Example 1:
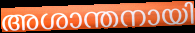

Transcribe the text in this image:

അശാന്തനായി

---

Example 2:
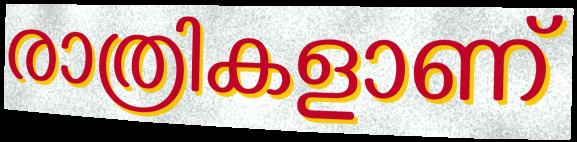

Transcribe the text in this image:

രാത്രികളാണ്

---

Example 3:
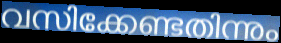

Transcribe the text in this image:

വസിക്കേണ്ടതിന്നും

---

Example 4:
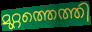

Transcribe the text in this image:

മുറ്റത്തെത്തി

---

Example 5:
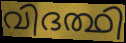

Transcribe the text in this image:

വിദത്ഥി